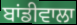
ਬਾਂਡੀਵਾਲਾ